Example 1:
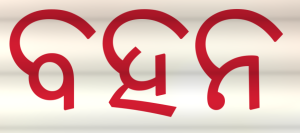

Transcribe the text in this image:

ବହନ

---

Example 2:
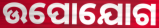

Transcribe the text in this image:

ଉପୋଯୋଗ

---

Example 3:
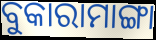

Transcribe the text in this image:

ବୁକାରାମାଙ୍ଗା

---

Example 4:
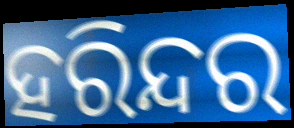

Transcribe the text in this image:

ହରିନ୍ଦର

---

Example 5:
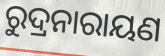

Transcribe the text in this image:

ରୁଦ୍ରନାରାୟଣ